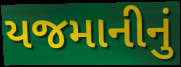
યજમાનીનું